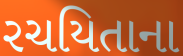
રચયિતાના